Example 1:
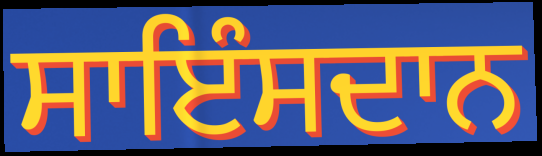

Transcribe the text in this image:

ਸਾਇੰਸਦਾਨ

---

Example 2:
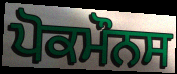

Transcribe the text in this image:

ਪੋਕਮੌਨਸ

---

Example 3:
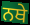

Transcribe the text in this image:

ਨਥੇ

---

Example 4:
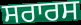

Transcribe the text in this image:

ਸਰਾਰਸ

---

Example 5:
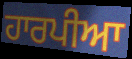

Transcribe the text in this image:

ਹਾਰਪੀਆ